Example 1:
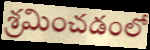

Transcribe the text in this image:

శ్రమించడంలో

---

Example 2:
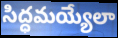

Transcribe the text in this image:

సిద్ధమయ్యేలా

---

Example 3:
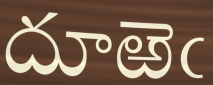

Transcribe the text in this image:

దూఱెఁ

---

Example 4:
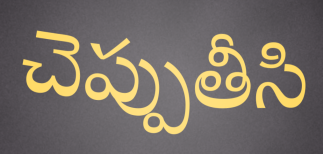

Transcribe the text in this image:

చెప్పుతీసి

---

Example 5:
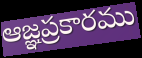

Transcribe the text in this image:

ఆజ్ఞప్రకారము